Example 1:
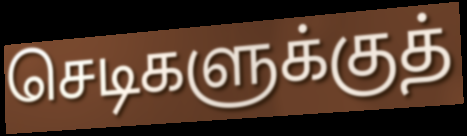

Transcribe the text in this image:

செடிகளுக்குத்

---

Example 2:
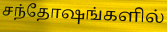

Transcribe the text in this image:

சந்தோஷங்களில்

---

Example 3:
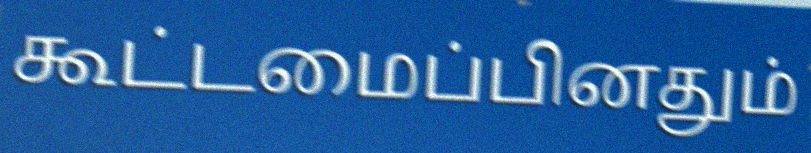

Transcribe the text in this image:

கூட்டமைப்பினதும்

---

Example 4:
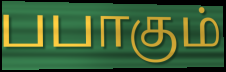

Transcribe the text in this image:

பபாகும்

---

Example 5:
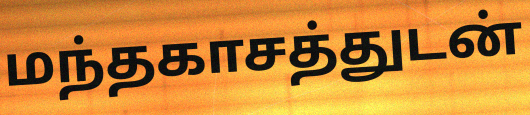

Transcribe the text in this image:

மந்தகாசத்துடன்